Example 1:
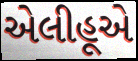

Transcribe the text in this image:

એલીહૂએ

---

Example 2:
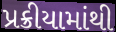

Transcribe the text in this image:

પ્રક્રીયામાંથી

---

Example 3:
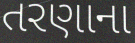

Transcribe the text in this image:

તરણાના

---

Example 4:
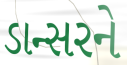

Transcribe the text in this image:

ડાન્સરને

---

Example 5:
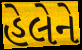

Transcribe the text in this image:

હેલેને